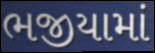
ભજીયામાં